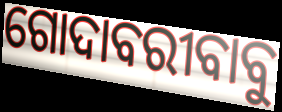
ଗୋଦାବରୀବାବୁ